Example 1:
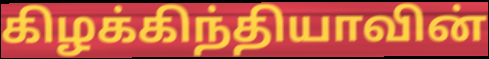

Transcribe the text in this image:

கிழக்கிந்தியாவின்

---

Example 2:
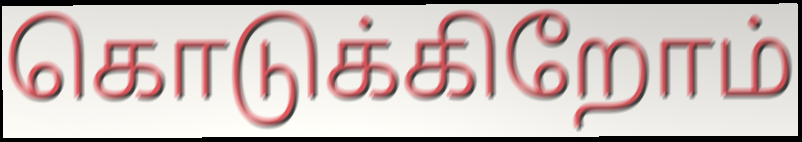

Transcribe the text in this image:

கொடுக்கிறோம்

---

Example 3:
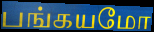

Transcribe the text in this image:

பங்கயமோ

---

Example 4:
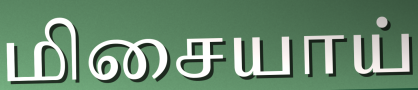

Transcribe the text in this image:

மிசையாய்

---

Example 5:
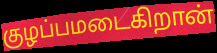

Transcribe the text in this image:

குழப்பமடைகிறான்